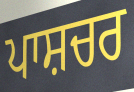
ਪਾਸ਼ਚਰ